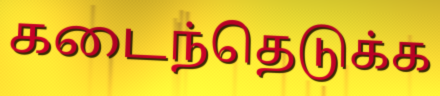
கடைந்தெடுக்க